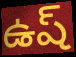
ఉష్